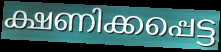
ക്ഷണിക്കപ്പെട്ട